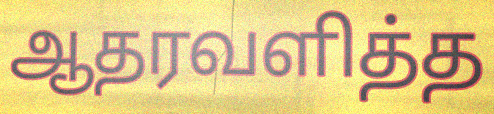
ஆதரவளித்த